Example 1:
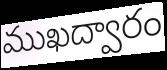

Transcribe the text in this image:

ముఖద్వారం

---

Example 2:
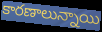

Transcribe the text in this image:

కారణాలున్నాయి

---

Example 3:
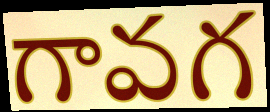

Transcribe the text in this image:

గావగ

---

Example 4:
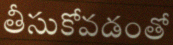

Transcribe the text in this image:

తీసుకోవడంతో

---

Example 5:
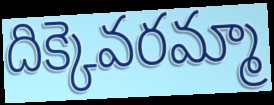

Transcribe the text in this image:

దిక్కెవరమ్మా